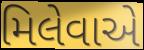
મિલેવાએ